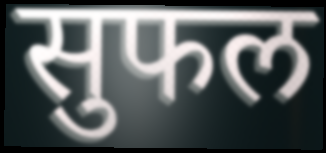
सुफल